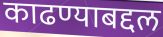
काढण्याबद्दल